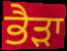
ਭੈੜਾ